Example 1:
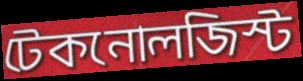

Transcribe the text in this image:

টেকনোলজিস্ট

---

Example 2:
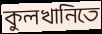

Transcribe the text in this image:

কুলখানিতে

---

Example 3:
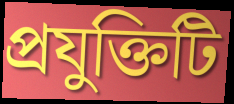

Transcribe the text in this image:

প্রযুক্তিটি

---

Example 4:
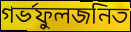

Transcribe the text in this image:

গর্ভফুলজনিত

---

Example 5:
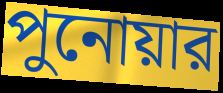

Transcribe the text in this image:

পুনোয়ার